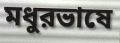
মধুরভাষে